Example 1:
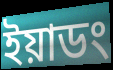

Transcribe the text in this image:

ইয়াডং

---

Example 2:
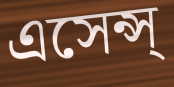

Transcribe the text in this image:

এসেন্স্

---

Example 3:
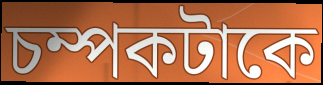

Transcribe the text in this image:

চম্পকটাকে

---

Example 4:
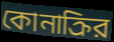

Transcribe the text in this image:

কোনাক্রির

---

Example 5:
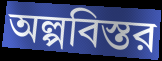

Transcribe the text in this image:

অল্পবিস্তর